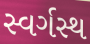
સ્વર્ગસ્થ